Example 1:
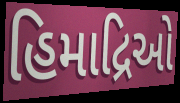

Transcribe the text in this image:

હિમાદ્રિઓ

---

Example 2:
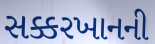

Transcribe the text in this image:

સક્કરખાનની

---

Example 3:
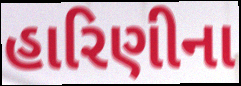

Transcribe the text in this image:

હારિણીના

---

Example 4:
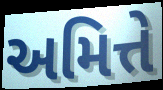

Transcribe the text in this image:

અમિત્તે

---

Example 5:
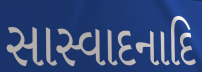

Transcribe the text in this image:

સાસ્વાદનાદિ